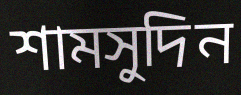
শামসুদিন